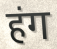
हंग